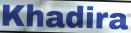
Khadira